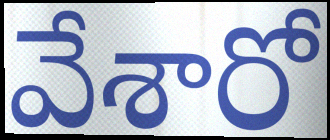
వేశారో